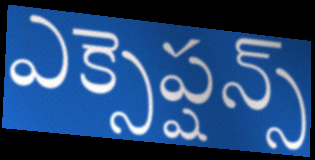
ఎక్సెప్షన్స్